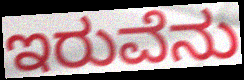
ಇರುವೆನು